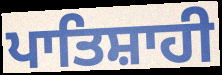
ਪਾਤਿਸ਼ਾਹੀ